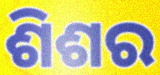
ଶିଶର